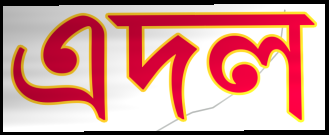
এদল